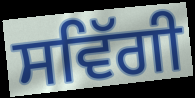
ਸਵਿੱਗੀ